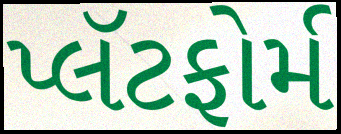
પ્લૅટફોર્મ